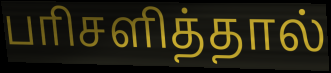
பரிசளித்தால்